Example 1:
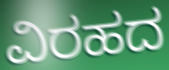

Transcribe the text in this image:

ವಿರಹದ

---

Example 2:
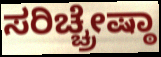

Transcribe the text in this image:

ಸರಿಚ್ಚ್ರೇಷ್ಠಾ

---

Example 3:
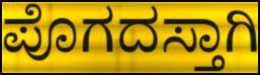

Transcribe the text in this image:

ಪೊಗದಸ್ತಾಗಿ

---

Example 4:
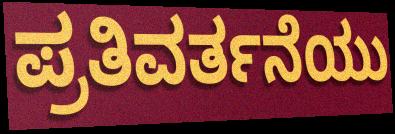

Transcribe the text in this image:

ಪ್ರತಿವರ್ತನೆಯು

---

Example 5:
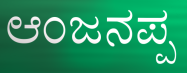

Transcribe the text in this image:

ಆಂಜನಪ್ಪ